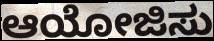
ಆಯೋಜಿಸು